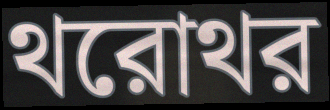
থরোথর